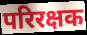
परिरक्षक